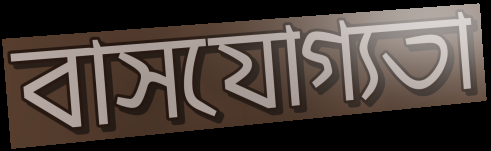
বাসযোগ্যতা